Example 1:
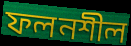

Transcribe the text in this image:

ফলনশীল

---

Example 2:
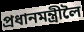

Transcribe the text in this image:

প্ৰধানমন্ত্ৰীলৈ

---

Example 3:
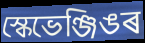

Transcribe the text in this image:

স্কেভেঞ্জিঙৰ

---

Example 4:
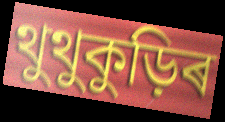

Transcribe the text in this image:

থুথুকুড়িৰ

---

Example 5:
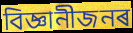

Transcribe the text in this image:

বিজ্ঞানীজনৰ